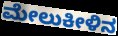
ಮೇಲುಕೀಳಿನ